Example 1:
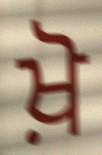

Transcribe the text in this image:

ਖ਼ੋ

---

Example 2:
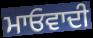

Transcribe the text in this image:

ਮਾਓਵਾਦੀ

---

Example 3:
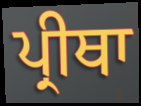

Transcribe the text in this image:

ਪ੍ਰੀਥਾ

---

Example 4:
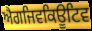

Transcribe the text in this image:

ਐਗਜਿਵਕਿਊਟਿਵ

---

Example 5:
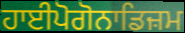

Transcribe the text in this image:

ਹਾਈਪੋਗੋਨਾਡਿਜ਼ਮ